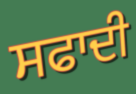
ਸਫਾਦੀ